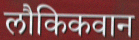
लौकिकवान